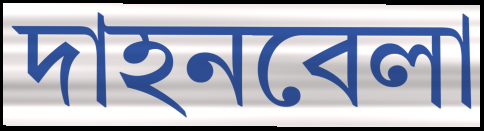
দাহনবেলা